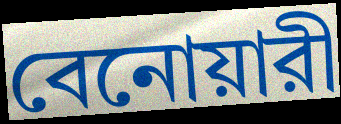
বেনোয়ারী